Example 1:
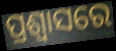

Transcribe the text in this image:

ପ୍ରଶ୍ବାସରେ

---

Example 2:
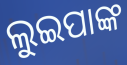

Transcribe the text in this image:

ଲୁଇପାଙ୍କ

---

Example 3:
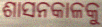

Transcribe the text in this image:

ଶାସନକାଳକୁ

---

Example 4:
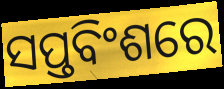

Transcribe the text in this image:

ସପ୍ତବିଂଶରେ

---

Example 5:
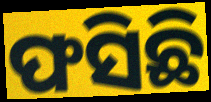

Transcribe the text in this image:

ଫସିଛି